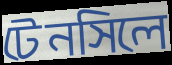
টেনসিলে